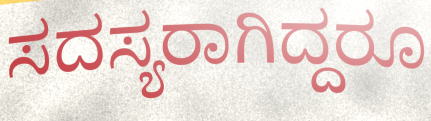
ಸದಸ್ಯರಾಗಿದ್ದರೂ